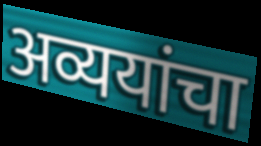
अव्ययांचा